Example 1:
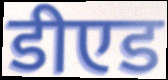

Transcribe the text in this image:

डीएड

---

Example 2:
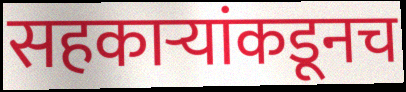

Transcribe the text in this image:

सहकार्‍यांकडूनच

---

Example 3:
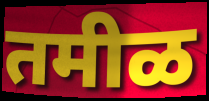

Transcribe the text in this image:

तमीळ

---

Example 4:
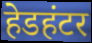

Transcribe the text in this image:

हेडहंटर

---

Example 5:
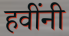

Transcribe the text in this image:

हवींनी